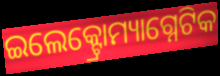
ଇଲେକ୍ଟ୍ରୋମ୍ୟାଗ୍ନେଟିକ